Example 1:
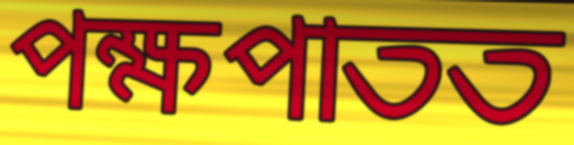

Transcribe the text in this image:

পক্ষপাতত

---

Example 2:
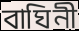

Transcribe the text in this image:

বাঘিনী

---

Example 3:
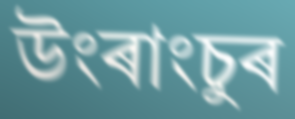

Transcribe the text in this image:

উংৰাংচুৰ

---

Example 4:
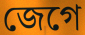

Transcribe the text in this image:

জেগে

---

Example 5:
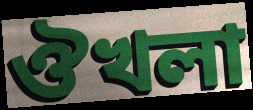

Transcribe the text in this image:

ঔখলা